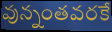
వున్నంతవరకే